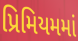
પ્રિમિયમમાં